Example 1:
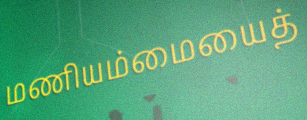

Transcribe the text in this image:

மணியம்மையைத்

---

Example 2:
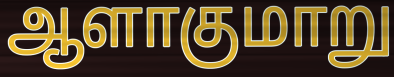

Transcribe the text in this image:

ஆளாகுமாறு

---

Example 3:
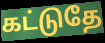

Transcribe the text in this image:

கட்டுதே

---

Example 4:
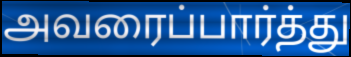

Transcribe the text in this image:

அவரைப்பார்த்து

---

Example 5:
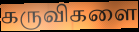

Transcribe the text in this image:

கருவிகளை